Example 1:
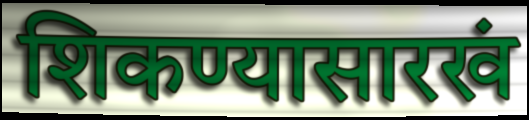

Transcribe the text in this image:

शिकण्यासारखं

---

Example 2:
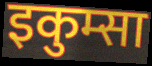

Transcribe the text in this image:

इकुम्सा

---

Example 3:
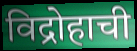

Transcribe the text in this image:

विद्रोहाची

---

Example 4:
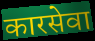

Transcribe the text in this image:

कारसेवा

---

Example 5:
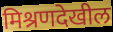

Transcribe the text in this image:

मिश्रणदेखील